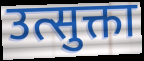
उत्सुक्ता